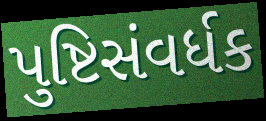
પુષ્ટિસંવર્ધક